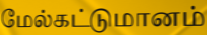
மேல்கட்டுமானம்